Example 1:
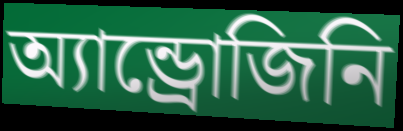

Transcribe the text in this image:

অ্যান্ড্রোজিনি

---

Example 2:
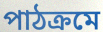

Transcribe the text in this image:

পাঠক্রমে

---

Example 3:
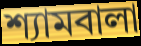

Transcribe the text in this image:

শ্যামবালা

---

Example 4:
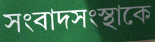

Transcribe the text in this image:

সংবাদসংস্থাকে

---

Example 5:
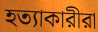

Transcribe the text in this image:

হত্যাকারীরা